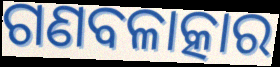
ଗଣବଳାତ୍କାର